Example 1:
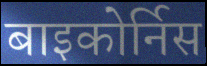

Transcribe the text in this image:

बाइकोर्निस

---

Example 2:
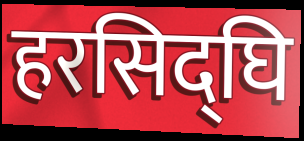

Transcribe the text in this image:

हरसिद्घि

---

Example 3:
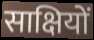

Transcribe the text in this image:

साक्षियों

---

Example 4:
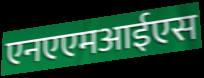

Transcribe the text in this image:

एनएएमआईएस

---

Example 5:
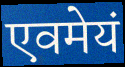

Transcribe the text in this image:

एवमेयं